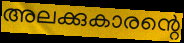
അലക്കുകാരന്റെ